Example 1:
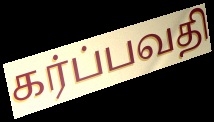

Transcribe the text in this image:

கர்ப்பவதி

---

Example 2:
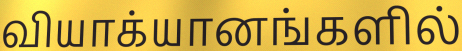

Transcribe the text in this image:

வியாக்யானங்களில்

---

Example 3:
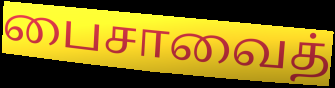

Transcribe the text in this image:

பைசாவைத்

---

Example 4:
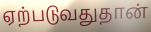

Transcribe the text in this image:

ஏற்படுவதுதான்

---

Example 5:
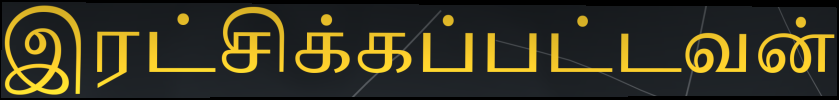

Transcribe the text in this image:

இரட்சிக்கப்பட்டவன்